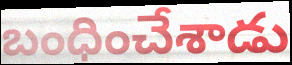
బంధించేశాడు